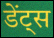
डेंट्स